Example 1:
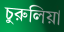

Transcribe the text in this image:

চুরুলিয়া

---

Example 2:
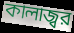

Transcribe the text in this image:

কালাজ্বর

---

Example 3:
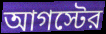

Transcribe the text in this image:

আগস্টের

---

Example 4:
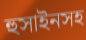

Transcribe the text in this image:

হুসাইনসহ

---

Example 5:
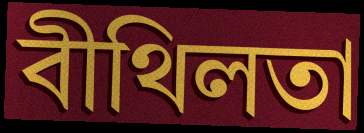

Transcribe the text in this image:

বীথিলতা